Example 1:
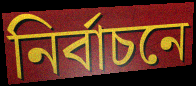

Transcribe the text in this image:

নিৰ্বাচনে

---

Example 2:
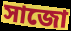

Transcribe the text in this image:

সাজো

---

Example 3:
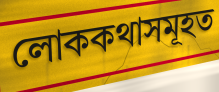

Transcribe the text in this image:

লোককথাসমূহত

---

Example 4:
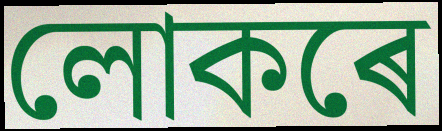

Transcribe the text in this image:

লোকৰে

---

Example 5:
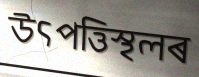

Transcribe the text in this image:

উৎপত্তিস্থলৰ